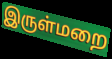
இருள்மறை